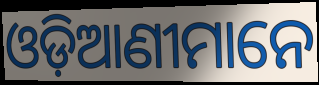
ଓଡ଼ିଆଣୀମାନେ